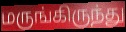
மருங்கிருந்து